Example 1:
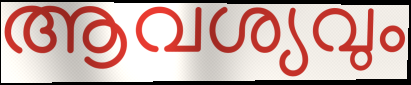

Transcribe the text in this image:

ആവശ്യവും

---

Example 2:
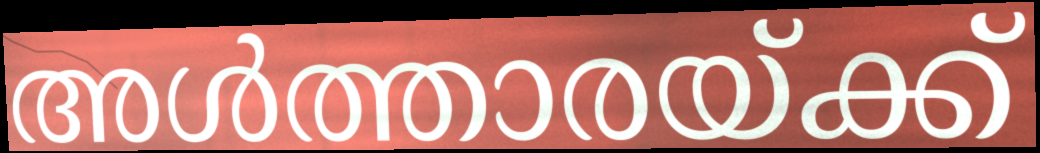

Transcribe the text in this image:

അൾത്താരയ്ക്ക്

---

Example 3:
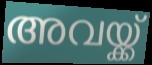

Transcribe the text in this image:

അവയ്ക്ക്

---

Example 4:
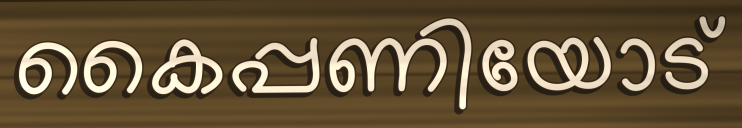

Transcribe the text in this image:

കൈപ്പണിയോട്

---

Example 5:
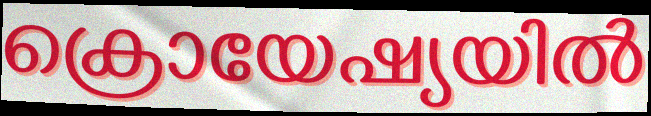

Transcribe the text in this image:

ക്രൊയേഷ്യയിൽ